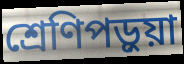
শ্রেণিপড়ুয়া